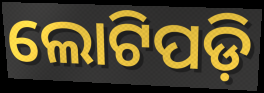
ଲୋଟିପଡ଼ି